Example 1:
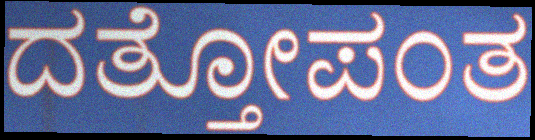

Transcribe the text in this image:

ದತ್ತೋಪಂತ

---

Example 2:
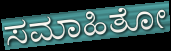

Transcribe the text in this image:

ಸಮಾಹಿತೋ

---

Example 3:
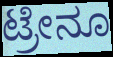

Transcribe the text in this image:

ಟ್ರೇನೂ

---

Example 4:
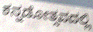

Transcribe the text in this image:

ಕನ್ನಡೋತ್ಸವದಲ್ಲಿ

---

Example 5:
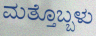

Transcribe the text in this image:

ಮತ್ತೊಬ್ಬಳು